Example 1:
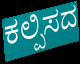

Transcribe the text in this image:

ಕಲ್ಪಿಸದ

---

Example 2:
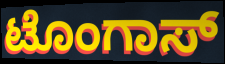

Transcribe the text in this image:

ಟೊಂಗಾಸ್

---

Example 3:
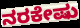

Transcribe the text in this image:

ನರಕೇಷು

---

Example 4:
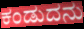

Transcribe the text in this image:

ಕಂಡುದನು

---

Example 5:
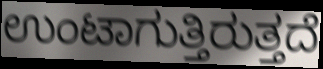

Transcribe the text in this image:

ಉಂಟಾಗುತ್ತಿರುತ್ತದೆ